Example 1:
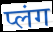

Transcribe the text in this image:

प्लंग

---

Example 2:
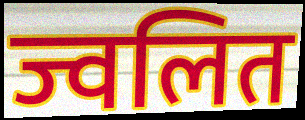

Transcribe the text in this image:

ज्वलित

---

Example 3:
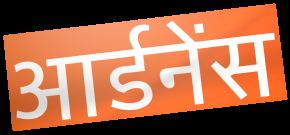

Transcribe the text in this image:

आर्डनेंस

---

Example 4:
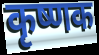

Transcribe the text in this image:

कृष्णक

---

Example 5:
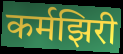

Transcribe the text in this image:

कर्मझिरी